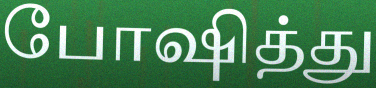
போஷித்து